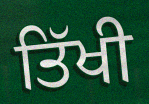
ਤਿੱਖੀ